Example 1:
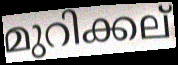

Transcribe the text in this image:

മുറിക്കല്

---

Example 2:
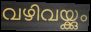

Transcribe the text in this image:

വഴിവയ്ക്കും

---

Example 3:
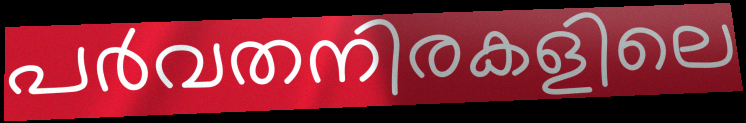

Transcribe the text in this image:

പർവതനിരകളിലെ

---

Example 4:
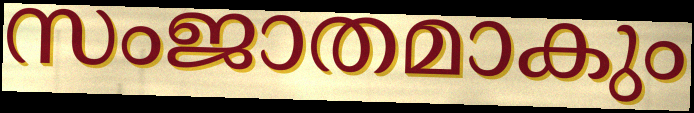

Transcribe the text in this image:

സംജാതമാകും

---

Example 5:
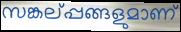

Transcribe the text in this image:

സങ്കല്പ്പങ്ങളുമാണ്